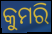
କୁମରି